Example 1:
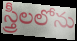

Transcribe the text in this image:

స్త్రీలలోను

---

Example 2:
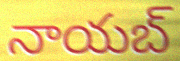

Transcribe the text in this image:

నాయబ్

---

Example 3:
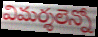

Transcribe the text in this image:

విమర్శలెన్నో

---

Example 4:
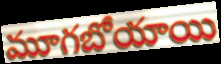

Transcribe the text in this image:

మూగబోయాయి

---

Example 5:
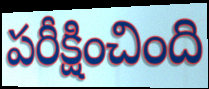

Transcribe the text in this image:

పరీక్షించింది